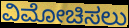
ವಿಮೋಚಿಸಲು